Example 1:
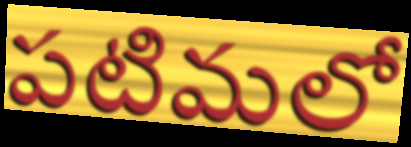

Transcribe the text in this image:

పటిమలో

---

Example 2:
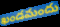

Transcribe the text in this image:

ఖండమందు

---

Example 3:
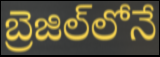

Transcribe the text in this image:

బ్రెజిల్‌లోనే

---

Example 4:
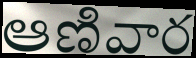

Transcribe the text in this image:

ఆణివార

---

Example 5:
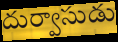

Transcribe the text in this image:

దుర్వాసుడు